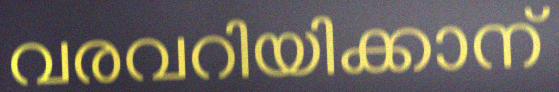
വരവറിയിക്കാന്